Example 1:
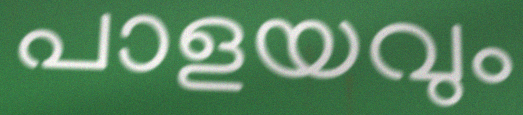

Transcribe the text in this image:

പാളയവും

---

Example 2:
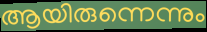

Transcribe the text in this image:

ആയിരുന്നെന്നും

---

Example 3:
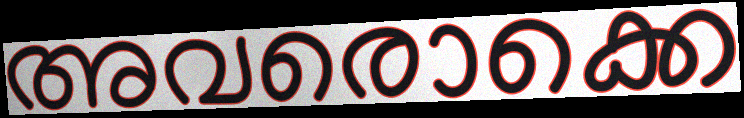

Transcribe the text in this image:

അവരൊക്കെ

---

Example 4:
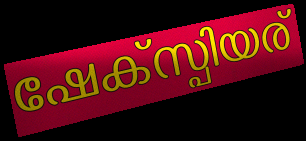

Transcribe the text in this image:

ഷേക്സ്പിയര്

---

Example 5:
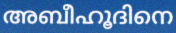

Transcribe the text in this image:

അബീഹൂദിനെ